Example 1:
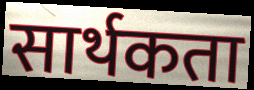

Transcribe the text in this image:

सार्थकता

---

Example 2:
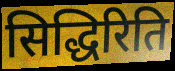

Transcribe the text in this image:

सिद्धिरिति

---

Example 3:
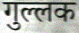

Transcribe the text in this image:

गुल्लक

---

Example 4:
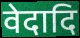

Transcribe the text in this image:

वेदादि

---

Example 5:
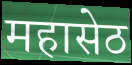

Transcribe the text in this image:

महासेठ